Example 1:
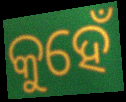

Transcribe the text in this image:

କୁହେଁ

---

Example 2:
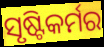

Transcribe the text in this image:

ସୃଷ୍ଟିକର୍ମର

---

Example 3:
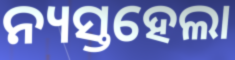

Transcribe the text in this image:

ନ୍ୟସ୍ତହେଲା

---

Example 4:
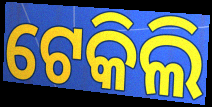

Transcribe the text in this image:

ଟେକିଲି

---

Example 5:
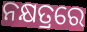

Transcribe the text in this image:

ନକ୍ଷତ୍ରରେ